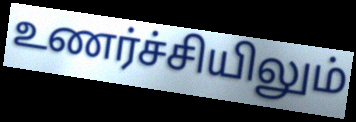
உணர்ச்சியிலும்